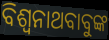
ବିଶ୍ୱନାଥବାବୁଙ୍କ